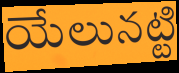
యేలునట్టి